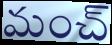
మంచ్